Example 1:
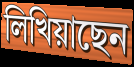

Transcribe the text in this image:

লিখিয়াছেন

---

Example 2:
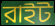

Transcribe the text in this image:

রাইট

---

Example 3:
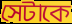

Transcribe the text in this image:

সেটাকে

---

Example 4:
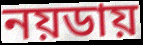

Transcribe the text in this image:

নয়ডায়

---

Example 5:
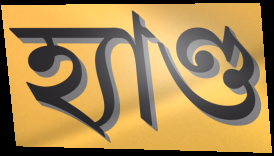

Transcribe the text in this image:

হ্যাণ্ড